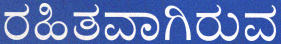
ರಹಿತವಾಗಿರುವ